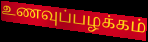
உணவுப்பழக்கம்